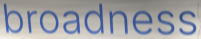
broadness